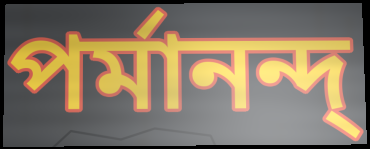
পর্মানন্দ্